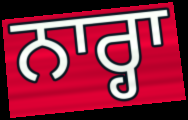
ਨਾਰ੍ਹਾ